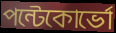
পন্টেকোর্ভো